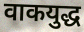
वाकयुद्ध